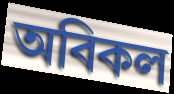
অবিকল